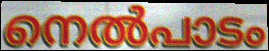
നെൽപാടം